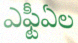
ఎఫ్టీఏల